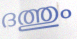
ദത്തും